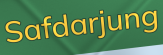
Safdarjung